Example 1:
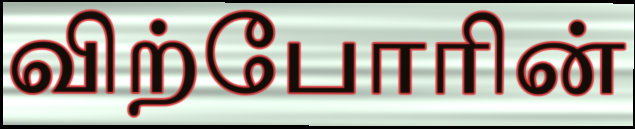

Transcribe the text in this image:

விற்போரின்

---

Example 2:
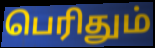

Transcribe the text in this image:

பெரிதும்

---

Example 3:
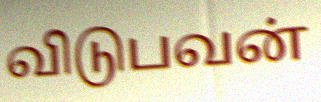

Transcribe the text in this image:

விடுபவன்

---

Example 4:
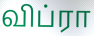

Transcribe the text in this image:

விப்ரா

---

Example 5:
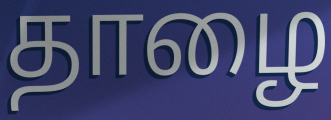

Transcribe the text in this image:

தாழை